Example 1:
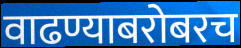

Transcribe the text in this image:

वाढण्याबरोबरच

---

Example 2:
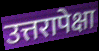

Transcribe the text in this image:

उत्तरापेक्षा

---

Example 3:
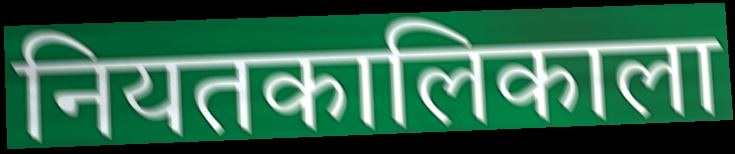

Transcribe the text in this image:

नियतकालिकाला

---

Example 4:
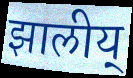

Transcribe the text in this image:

झालीय्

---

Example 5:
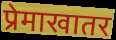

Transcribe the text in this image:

प्रेमाखातर